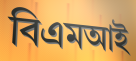
বিএমআই